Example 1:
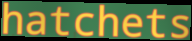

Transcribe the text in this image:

hatchets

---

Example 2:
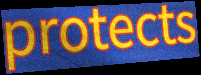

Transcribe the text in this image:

protects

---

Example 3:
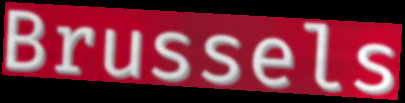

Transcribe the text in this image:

Brussels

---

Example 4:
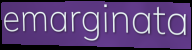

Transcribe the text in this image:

emarginata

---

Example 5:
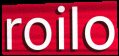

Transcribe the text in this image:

roilo